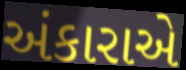
અંકારાએ